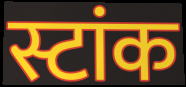
स्टांक